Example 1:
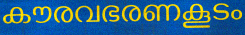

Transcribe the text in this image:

കൗരവഭരണകൂടം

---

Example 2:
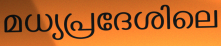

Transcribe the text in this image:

മധ്യപ്രദേശിലെ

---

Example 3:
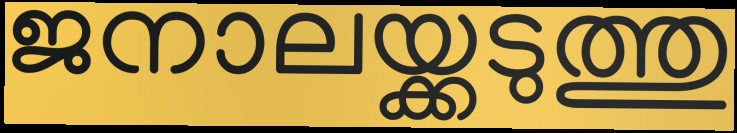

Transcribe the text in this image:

ജനാലയ്ക്കടുത്തു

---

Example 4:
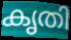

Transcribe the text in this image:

കൃതി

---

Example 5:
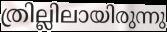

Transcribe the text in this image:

ത്രില്ലിലായിരുന്നു